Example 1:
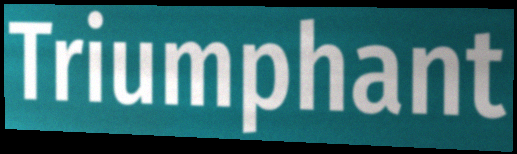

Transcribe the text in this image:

Triumphant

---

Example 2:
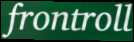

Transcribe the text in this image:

frontroll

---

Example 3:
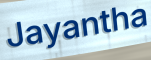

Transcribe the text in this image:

Jayantha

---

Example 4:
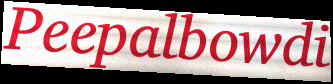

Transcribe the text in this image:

Peepalbowdi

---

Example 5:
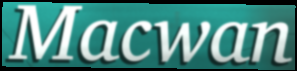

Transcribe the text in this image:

Macwan